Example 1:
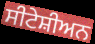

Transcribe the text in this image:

ਸੀਟੇਸ਼ੀਅਨ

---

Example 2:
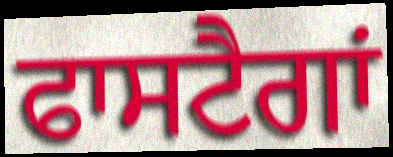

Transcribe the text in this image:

ਫਾਸਟੈਗਾਂ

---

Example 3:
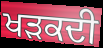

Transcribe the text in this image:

ਖੜਕਦੀ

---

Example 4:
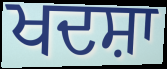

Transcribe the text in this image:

ਖਦਸ਼ਾ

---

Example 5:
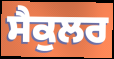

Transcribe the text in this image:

ਸੈਕੁਲਰ